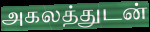
அகலத்துடன்